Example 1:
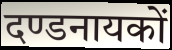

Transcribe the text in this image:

दण्डनायकों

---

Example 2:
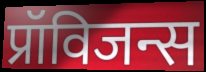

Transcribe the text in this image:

प्रॉविजन्स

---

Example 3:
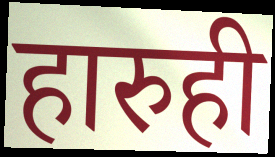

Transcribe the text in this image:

हारुही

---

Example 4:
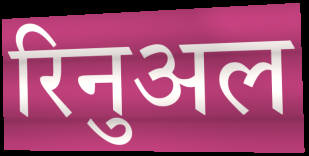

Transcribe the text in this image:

रिनुअल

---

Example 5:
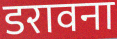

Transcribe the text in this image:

डरावना